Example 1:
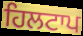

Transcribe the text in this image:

ਹਿਲਟਾਪ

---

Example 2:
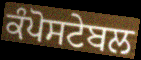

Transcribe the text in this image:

ਕੰਪੋਸਟੇਬਲ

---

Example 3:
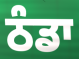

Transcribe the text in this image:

ਠੰਡਾ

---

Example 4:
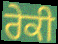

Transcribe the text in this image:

ਰੇਕੀ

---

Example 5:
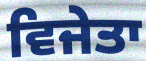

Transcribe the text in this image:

ਵਿਜੇਤਾ